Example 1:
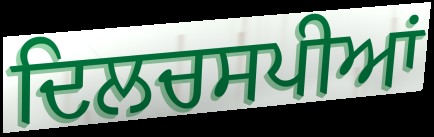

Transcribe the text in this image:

ਦਿਲਚਸਪੀਆਂ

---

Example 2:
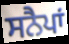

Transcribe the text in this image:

ਸਨੈਪਾਂ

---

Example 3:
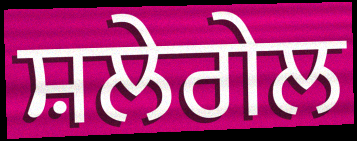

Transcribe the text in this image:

ਸ਼ਲੇਗੇਲ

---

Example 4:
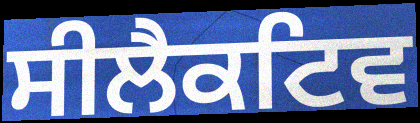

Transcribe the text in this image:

ਸੀਲੈਕਟਿਵ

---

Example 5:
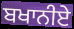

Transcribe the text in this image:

ਬਖਾਨੀਏ